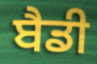
ਬੈਡੀ